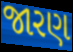
જારણ